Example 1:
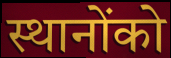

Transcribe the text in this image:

स्थानोंको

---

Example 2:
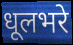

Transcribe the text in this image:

धूलभरे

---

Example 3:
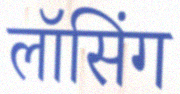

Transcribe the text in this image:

लॉसिंग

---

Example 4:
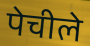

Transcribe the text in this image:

पेचीले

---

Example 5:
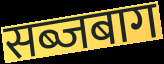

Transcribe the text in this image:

सब्ज़बाग